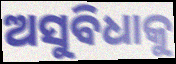
ଅସୁବିଧାକୁ